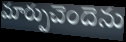
మార్పుచెందెను